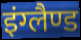
इंग्‍लैण्‍ड